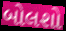
બોલશો